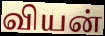
வியன்